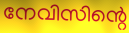
നേവിസിന്റെ